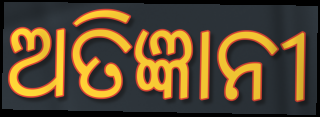
ଅତିଜ୍ଞାନୀ